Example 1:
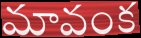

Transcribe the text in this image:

మావంక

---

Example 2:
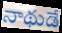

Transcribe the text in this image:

నాథుడే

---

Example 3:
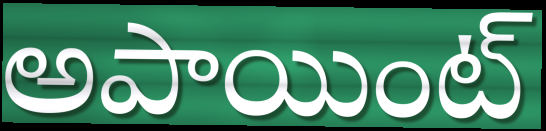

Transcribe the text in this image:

అపాయింట్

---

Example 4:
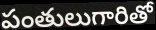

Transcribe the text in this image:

పంతులుగారితో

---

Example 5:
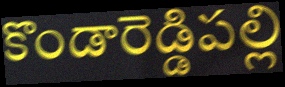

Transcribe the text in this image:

కొండారెడ్డిపల్లి